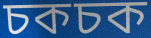
চকচক